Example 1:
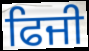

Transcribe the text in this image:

ਫਿਜੀ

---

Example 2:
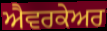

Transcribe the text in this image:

ਐਵਰਕੇਅਰ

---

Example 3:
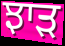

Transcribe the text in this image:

ਝਾੜ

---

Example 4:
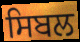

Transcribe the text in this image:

ਸਿਬਲ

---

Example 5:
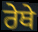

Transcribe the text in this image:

ਰੇਥੇ